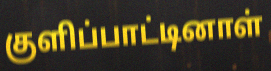
குளிப்பாட்டினாள்